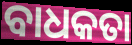
ବାଧକତା